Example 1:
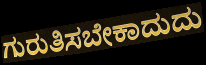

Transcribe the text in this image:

ಗುರುತಿಸಬೇಕಾದುದು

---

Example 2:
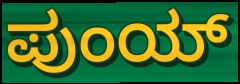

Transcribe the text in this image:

ಪುಂಯ್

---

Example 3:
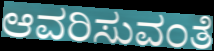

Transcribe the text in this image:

ಆವರಿಸುವಂತೆ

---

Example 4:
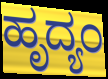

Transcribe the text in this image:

ಹೃದ್ಯಂ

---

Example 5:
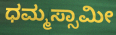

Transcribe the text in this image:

ಧಮ್ಮಸ್ಸಾಮೀ